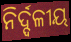
ନିର୍ଦ୍ଦଳୀୟ